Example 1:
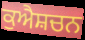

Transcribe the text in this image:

ਕੁਐਸ਼ਚਨ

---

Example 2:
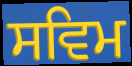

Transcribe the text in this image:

ਸਵਿਮ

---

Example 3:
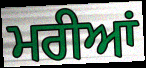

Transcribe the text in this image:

ਮਰੀਆਂ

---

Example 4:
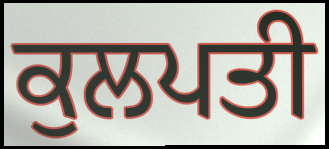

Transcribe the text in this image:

ਕੁਲਪਤੀ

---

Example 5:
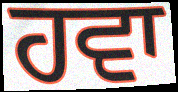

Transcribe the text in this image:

ਹਵਾ